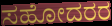
ಸಹೋದರರ